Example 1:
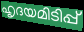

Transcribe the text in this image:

ഹൃദയമിടിപ്പ്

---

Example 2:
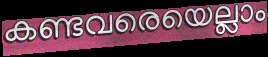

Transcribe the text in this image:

കണ്ടവരെയെല്ലാം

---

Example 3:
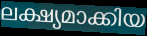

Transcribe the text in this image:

ലക്ഷ്യമാക്കിയ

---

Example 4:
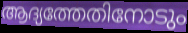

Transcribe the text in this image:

ആദ്യത്തേതിനോടും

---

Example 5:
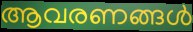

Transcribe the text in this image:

ആവരണങ്ങൾ